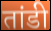
तांडी